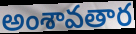
అంశావతార